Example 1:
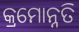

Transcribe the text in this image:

କ୍ରମୋନ୍ନତି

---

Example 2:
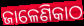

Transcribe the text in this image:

ଜାଳେଣିକାଠ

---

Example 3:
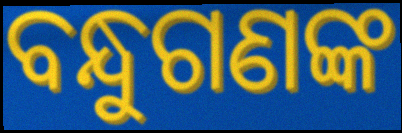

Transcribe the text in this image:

ବନ୍ଧୁଗଣଙ୍କ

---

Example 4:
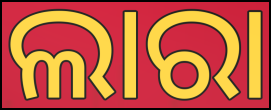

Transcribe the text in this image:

ଲାରା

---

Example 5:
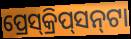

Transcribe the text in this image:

ପ୍ରେସ୍‌କ୍ରିପ୍‌ସନ୍‌ଟା